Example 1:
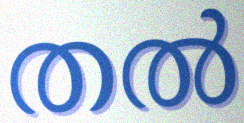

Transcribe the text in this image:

തൽ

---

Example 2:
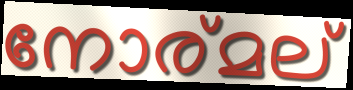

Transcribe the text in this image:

നോര്മല്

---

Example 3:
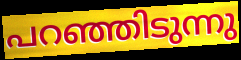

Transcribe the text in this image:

പറഞ്ഞിടുന്നു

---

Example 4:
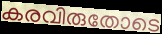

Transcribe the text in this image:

കരവിരുതോടെ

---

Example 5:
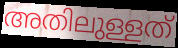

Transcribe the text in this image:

അതിലുള്ളത്